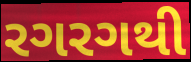
રગરગથી